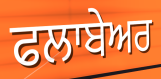
ਫਲਾਬੇਅਰ